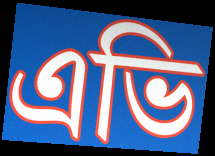
এভি